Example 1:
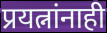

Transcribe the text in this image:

प्रयत्नांनाही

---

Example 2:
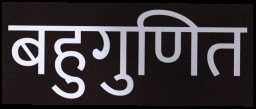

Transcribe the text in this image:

बहुगुणित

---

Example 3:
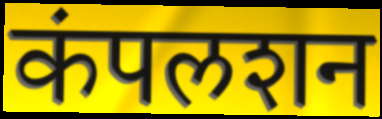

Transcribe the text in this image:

कंपलशन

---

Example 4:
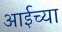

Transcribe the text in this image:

आईच्या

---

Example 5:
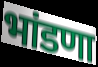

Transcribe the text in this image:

भांडणा